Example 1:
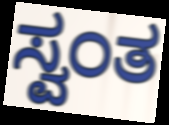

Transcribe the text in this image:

ಸ್ವಂತ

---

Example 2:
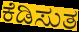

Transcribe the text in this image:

ಕೆಡಿಸುತ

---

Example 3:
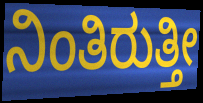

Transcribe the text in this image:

ನಿಂತಿರುತ್ತೀ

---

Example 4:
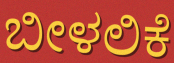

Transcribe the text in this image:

ಬೀಳಲಿಕೆ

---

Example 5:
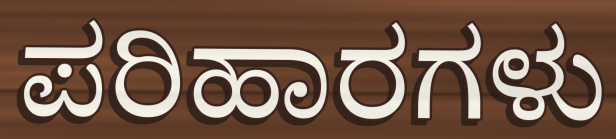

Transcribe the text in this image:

ಪರಿಹಾರಗಳು